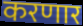
करणार